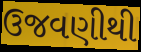
ઉજવણીથી